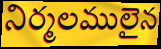
నిర్మలములైన